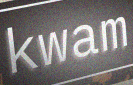
kwam